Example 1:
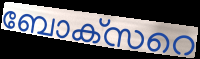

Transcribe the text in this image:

ബോക്‌സറെ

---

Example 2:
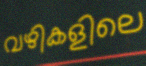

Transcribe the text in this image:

വഴികളിലെ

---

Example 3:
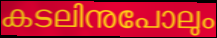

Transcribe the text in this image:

കടലിനുപോലും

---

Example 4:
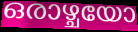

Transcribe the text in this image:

ഒരാഴ്ചയോ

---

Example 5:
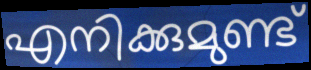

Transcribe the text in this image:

എനിക്കുമുണ്ട്